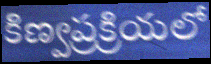
కిణ్వప్రక్రియలో